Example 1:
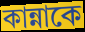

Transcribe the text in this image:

কান্নাকে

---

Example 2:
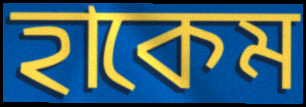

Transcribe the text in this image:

হাকেম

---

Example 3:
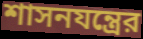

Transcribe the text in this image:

শাসনযন্ত্রের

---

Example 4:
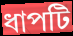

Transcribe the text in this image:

ধাপটি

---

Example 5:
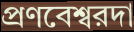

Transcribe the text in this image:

প্রণবেশ্বরদা